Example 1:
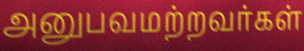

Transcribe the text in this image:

அனுபவமற்றவர்கள்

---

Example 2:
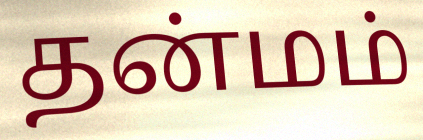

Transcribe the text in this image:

தன்மம்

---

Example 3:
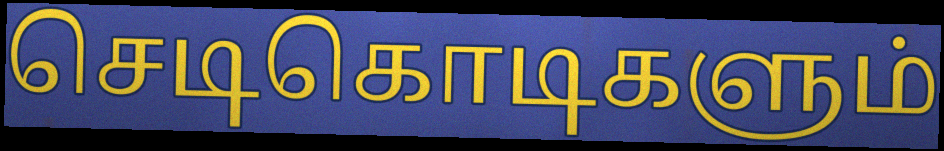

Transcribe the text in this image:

செடிகொடிகளும்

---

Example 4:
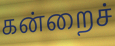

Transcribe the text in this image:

கன்றைச்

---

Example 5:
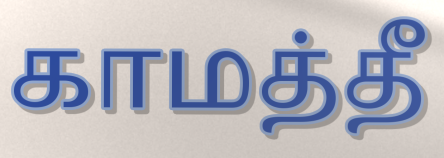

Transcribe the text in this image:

காமத்தீ